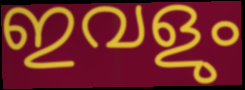
ഇവളും